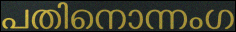
പതിനൊന്നംഗ